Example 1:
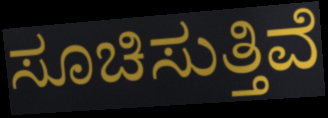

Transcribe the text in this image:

ಸೂಚಿಸುತ್ತಿವೆ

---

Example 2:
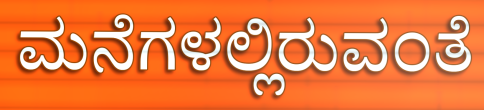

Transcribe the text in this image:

ಮನೆಗಳಲ್ಲಿರುವಂತೆ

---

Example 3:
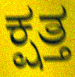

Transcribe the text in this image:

ಕ್ಷತ್ತ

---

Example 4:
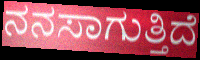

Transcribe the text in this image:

ನನಸಾಗುತ್ತಿದೆ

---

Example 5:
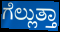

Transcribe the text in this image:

ಗೆಲ್ಲುತ್ತಾ